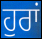
ਹੁਰਾਂ